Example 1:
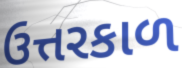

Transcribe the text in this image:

ઉત્તરકાળ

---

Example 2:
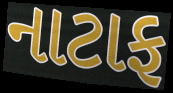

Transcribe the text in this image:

નાટાફ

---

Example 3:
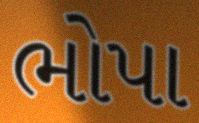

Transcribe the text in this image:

ભોપા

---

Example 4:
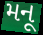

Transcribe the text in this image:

મનૂ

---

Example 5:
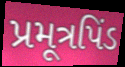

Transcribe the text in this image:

પ્રમૂત્રપિંડ